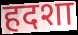
हदशा